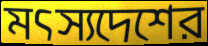
মৎস্যদেশের